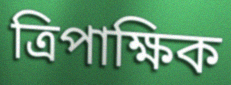
ত্রিপাক্ষিক